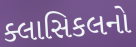
ક્લાસિકલનો